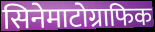
सिनेमाटोग्राफिक